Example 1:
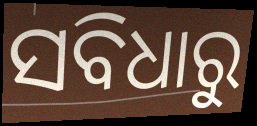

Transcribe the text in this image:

ସବିଧାରୁ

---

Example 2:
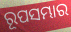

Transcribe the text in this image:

ରୂପସମ୍ଭାର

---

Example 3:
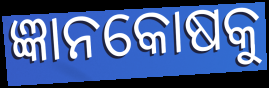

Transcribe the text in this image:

ଜ୍ଞାନକୋଷକୁ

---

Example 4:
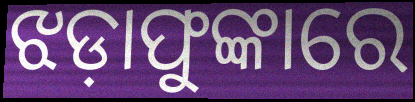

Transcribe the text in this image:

ଝଡ଼ାଫୁଙ୍କାରେ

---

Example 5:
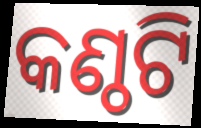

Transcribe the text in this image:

କଣ୍ଠଟି